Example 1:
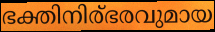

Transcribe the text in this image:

ഭക്തിനിര്ഭരവുമായ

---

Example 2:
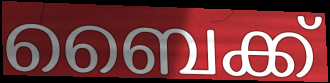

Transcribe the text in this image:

ബൈക്ക്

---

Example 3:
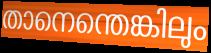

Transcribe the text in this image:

താനെന്തെങ്കിലും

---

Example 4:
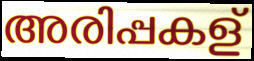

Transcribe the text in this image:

അരിപ്പകള്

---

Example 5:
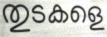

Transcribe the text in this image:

തുടകളെ